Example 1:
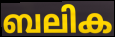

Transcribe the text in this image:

ബലിക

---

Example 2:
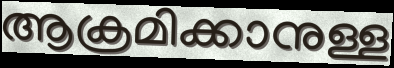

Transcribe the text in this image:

ആക്രമിക്കാനുള്ള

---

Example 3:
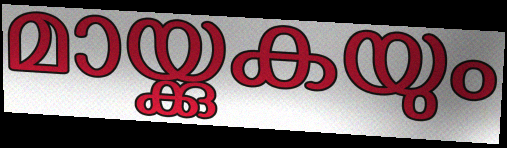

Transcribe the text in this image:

മായ്ക്കുകയും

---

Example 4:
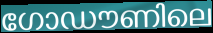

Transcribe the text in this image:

ഗോഡൗണിലെ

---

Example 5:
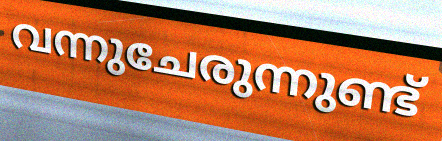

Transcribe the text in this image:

വന്നുചേരുന്നുണ്ട്